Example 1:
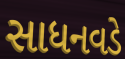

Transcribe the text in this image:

સાધનવડે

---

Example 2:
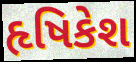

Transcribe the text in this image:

હૃષિકેશ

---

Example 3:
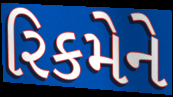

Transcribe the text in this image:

રિકમેને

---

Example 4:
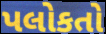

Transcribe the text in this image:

પલોકતો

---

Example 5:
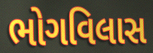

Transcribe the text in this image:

ભોગવિલાસ